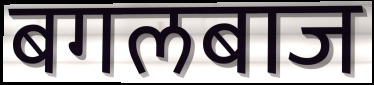
बगलबाज